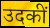
उदकीं